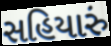
સહિયારું